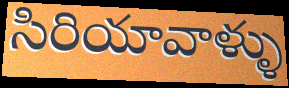
సిరియావాళ్ళు